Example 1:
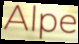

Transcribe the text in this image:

Alpe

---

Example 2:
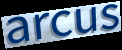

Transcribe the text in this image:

arcus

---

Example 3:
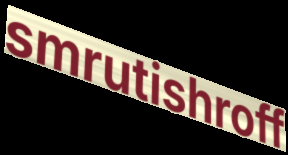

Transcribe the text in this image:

smrutishroff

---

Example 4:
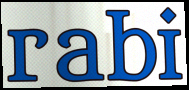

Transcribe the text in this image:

rabi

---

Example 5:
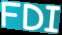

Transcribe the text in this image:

FDI